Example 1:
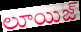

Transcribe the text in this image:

లూయిజ్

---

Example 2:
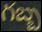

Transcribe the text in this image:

గబ్బ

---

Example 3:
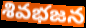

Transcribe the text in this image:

శివభజన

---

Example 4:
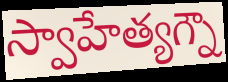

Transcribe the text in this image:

స్వాహేత్యగ్నౌ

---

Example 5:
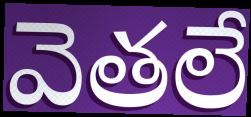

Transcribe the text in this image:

వెతలే